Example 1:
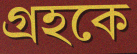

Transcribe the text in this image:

গ্রহকে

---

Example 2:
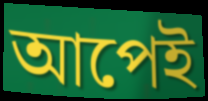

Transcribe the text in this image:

আপেই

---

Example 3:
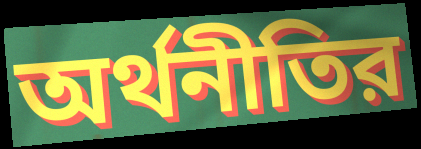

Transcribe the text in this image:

অর্থনীতির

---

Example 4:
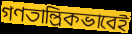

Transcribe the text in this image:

গণতান্ত্রিকভাবেই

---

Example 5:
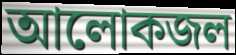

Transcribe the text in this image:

আলোকজল